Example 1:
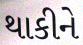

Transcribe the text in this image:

થાકીને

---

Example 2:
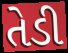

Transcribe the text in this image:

તેડી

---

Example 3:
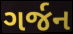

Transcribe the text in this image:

ગર્જન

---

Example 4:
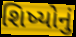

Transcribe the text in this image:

શિષ્યોનું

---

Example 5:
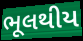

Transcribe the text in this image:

ભૂલથીય